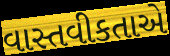
વાસ્તવીકતાએ